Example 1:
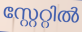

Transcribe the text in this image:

സ്റ്റേറ്റിൽ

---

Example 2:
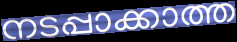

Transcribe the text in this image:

നടപ്പാക്കാത്ത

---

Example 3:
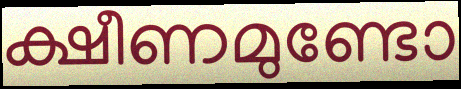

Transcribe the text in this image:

ക്ഷീണമുണ്ടോ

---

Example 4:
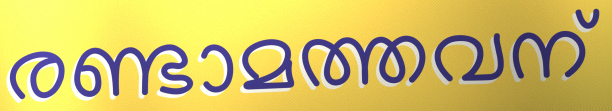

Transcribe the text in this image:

രണ്ടാമത്തവന്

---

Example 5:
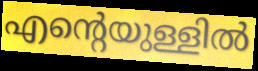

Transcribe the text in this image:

എന്റെയുള്ളിൽ